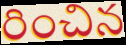
రించిన